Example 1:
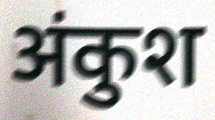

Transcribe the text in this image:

अंकुश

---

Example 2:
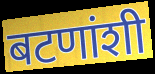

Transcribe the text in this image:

बटणांशी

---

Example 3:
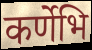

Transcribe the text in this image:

कर्णेभि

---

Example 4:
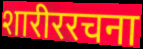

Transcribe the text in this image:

शारीररचना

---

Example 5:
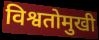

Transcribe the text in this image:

विश्वतोमुखी